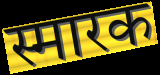
स्मारक